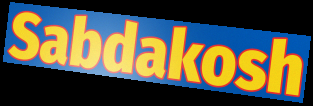
Sabdakosh